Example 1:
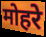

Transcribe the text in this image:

मोहरे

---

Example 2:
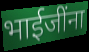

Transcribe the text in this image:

भाईजींना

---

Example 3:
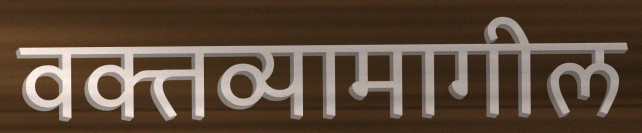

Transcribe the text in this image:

वक्तव्यामागील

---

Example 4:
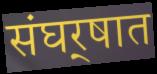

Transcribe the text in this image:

संघर्षात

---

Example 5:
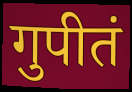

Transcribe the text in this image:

गुपीतं